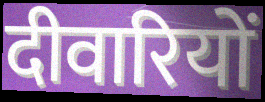
दीवारियों